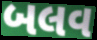
બલવ